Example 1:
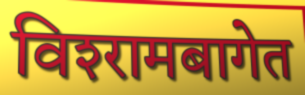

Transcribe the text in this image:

विश्रामबागेत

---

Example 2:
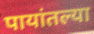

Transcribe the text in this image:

पायांतल्या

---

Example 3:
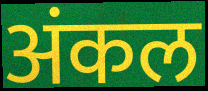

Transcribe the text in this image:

अंकल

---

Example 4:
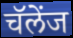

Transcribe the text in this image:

चॅलेंज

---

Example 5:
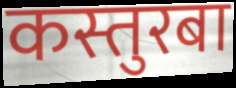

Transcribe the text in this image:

कस्तुरबा